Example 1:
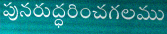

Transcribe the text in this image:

పునరుద్ధరించగలము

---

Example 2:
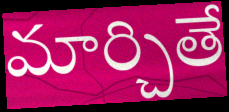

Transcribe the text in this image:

మార్చితే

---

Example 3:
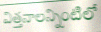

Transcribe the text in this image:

విత్తనాలన్నింటిలో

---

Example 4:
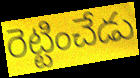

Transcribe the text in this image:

రెట్టించేడు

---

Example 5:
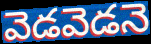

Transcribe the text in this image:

వెడవెడనె